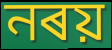
নৰয়